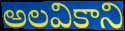
అలవికాని